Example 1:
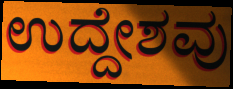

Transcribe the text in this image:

ಉದ್ದೇಶವು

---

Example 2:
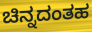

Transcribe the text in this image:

ಚಿನ್ನದಂತಹ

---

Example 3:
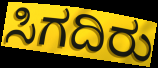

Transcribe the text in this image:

ಸಿಗದಿರು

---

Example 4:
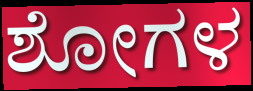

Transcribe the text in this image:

ಶೋಗಳ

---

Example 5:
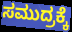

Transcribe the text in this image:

ಸಮುದ್ರಕ್ಕೆ